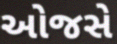
ઓજસે